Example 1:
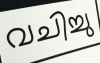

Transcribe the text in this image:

വചിച്ചു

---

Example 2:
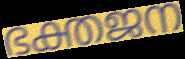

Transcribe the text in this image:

ഭക്തജന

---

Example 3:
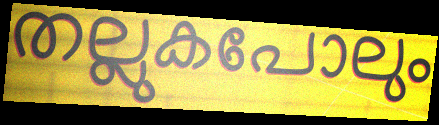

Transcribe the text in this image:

തല്ലുകപോലും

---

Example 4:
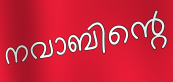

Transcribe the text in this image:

നവാബിന്റെ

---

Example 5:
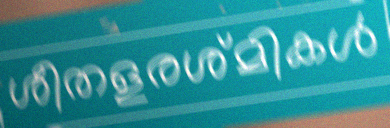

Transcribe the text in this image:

ശീതളരശ്മികൾ